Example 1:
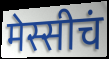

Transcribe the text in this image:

मेस्सीचं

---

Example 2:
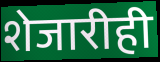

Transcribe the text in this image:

शेजारीही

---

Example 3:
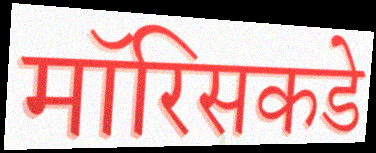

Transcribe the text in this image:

मॉरिसकडे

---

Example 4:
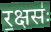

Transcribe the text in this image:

र॒क्षसः॑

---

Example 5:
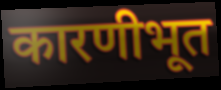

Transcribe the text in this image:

कारणीभूत